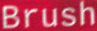
Brush